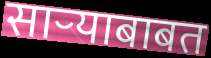
साऱ्याबाबत